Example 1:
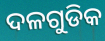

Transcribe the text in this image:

ଦଳଗୁଡିକ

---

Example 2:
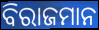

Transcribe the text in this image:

ବିରାଜମାନ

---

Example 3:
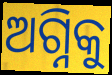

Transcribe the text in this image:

ଅଗ୍ନିକୁ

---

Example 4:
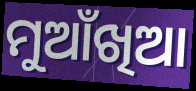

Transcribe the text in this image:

ମୁଆଁଖିଆ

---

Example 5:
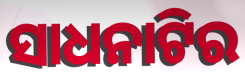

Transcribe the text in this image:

ସାଧନାଟିର